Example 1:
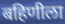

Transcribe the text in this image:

बहिणीला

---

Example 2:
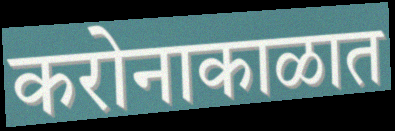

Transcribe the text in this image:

करोनाकाळात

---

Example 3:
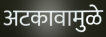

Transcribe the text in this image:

अटकावामुळे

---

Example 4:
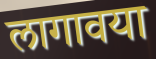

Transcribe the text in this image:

लागावया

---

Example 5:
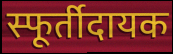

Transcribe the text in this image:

स्फूर्तीदायक